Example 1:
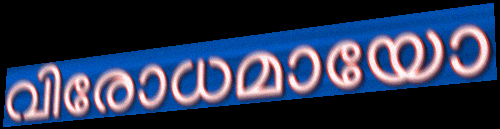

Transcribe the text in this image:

വിരോധമായോ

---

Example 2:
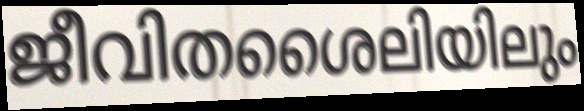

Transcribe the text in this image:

ജീവിതശൈലിയിലും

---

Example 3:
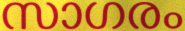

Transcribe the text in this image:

സാഗരം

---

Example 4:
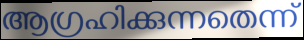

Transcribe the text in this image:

ആഗ്രഹിക്കുന്നതെന്ന്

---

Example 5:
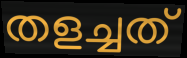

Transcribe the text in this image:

തളച്ചത്